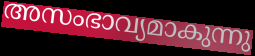
അസംഭാവ്യമാകുന്നു